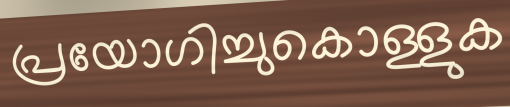
പ്രയോഗിച്ചുകൊള്ളുക